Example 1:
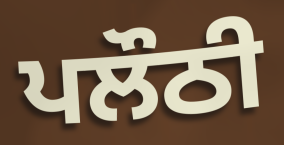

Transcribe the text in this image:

ਪਲੌਠੀ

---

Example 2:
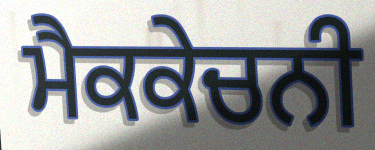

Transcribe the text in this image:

ਮੈਕਕੇਚਨੀ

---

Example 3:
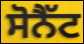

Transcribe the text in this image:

ਸੋਨੈੱਟ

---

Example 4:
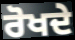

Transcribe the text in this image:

ਰੋਖਦੇ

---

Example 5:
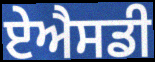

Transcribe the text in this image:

ਏਐਸਡੀ